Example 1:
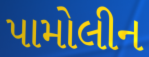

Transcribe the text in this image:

પામોલીન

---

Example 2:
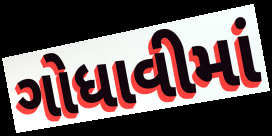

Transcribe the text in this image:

ગોધાવીમાં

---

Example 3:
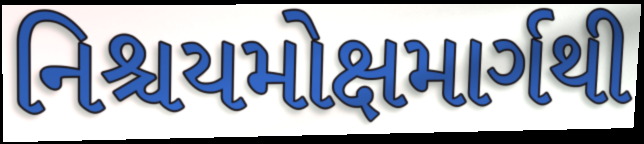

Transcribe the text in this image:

નિશ્ચયમોક્ષમાર્ગથી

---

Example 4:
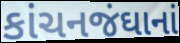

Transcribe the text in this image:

કાંચનજંઘાનાં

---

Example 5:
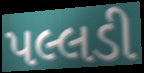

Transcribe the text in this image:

પલ્લડી